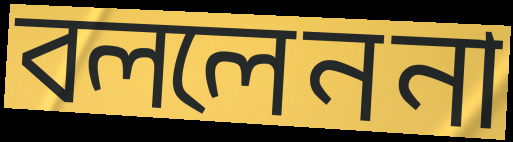
বললেননা